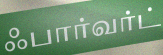
ஃபார்வர்ட்